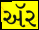
ઍર